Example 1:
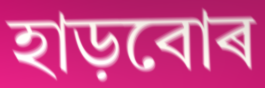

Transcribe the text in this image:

হাড়বোৰ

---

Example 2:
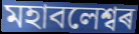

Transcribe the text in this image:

মহাবলেশ্বৰ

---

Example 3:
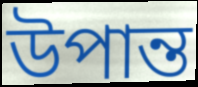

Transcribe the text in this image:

উপান্ত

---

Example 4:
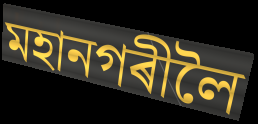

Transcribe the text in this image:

মহানগৰীলৈ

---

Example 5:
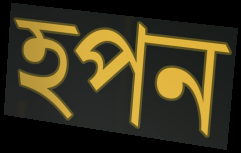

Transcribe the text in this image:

হপন